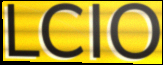
LCIO